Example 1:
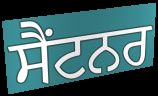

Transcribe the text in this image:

ਸੈਂਟਨਰ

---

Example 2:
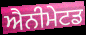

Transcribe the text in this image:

ਐਨੀਮੇਟਡ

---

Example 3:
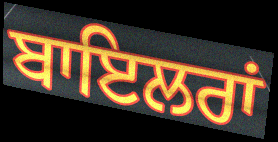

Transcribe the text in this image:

ਬਾਇਲਰਾਂ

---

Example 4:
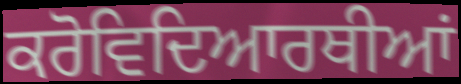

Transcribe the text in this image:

ਕਰੋਵਿਦਿਆਰਥੀਆਂ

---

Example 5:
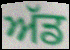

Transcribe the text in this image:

ਅੱਡ